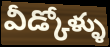
వీడ్కోళ్ళు